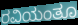
ರವಿಯಂತೂ